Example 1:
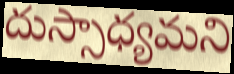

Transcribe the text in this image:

దుస్సాధ్యమని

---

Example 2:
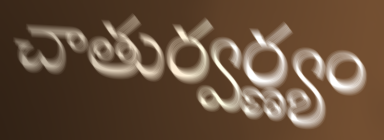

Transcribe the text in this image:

చాతుర్వర్ణ్యం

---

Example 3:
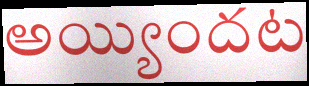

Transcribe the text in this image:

అయ్యిందట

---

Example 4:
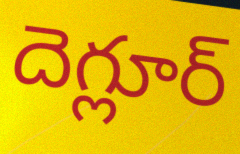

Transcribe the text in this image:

దెగ్లూర్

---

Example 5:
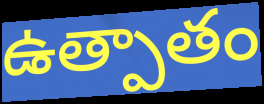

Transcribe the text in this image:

ఉత్పాతం